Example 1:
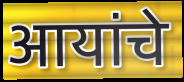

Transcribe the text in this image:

आयांचे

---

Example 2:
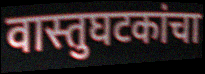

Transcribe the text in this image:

वास्तुघटकांचा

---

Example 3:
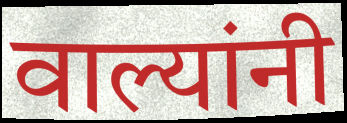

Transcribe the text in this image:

वाल्यांनी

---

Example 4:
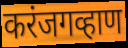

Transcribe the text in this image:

करंजगव्हाण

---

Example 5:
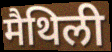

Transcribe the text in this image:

मैथिली